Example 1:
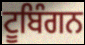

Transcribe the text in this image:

ਟੂਬਿੰਗਨ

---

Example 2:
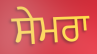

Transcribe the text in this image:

ਸੇਮਰਾ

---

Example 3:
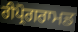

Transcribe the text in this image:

ਰੀਪ੍ਰੋਗਰਾਮਡ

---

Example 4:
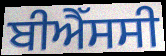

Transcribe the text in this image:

ਬੀਐੱਸਸੀ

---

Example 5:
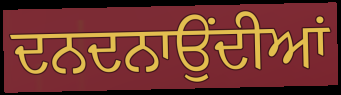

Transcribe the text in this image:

ਦਨਦਨਾਉਂਦੀਆਂ